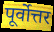
पूर्वोत्तर